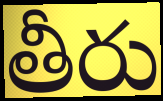
తీరు